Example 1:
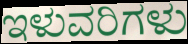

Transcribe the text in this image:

ಇಳುವರಿಗಳು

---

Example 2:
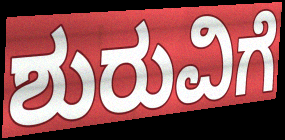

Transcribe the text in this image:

ಶುರುವಿಗೆ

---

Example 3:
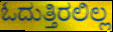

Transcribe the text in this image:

ಓದುತ್ತಿರಲಿಲ್ಲ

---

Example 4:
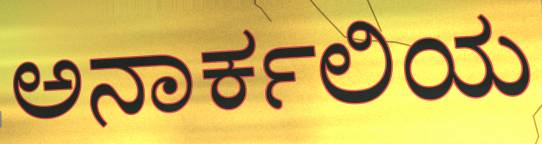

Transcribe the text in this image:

ಅನಾರ್ಕಲಿಯ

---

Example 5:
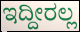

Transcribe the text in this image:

ಇದ್ದೀರಲ್ಲ